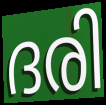
ദരി